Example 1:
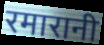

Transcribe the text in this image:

रमारानी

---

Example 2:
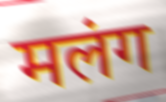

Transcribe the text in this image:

मलंग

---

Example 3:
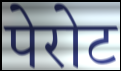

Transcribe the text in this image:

पेरोट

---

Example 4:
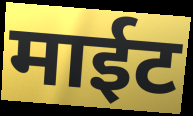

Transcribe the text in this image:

माईट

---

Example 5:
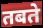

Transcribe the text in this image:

तबते